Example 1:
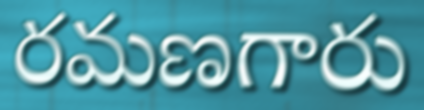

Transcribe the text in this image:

రమణగారు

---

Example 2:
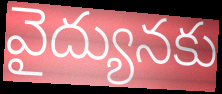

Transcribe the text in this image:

వైద్యునకు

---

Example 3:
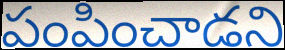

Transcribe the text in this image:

పంపించాడని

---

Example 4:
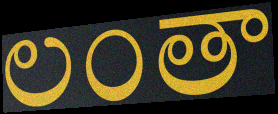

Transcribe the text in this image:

లంతా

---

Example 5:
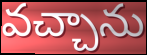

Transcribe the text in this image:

వచ్చాను